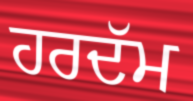
ਹਰਦੱਮ